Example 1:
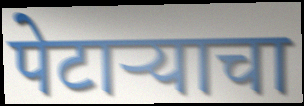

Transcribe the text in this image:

पेटाऱ्याचा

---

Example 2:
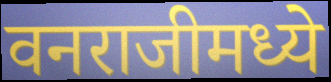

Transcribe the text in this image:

वनराजीमध्ये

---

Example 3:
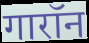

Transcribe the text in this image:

गारॉन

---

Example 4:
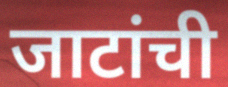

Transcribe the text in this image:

जाटांची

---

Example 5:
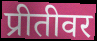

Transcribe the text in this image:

प्रीतीवर